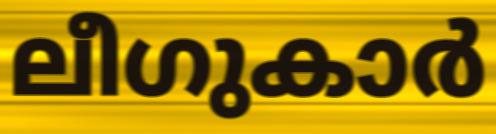
ലീഗുകാർ